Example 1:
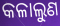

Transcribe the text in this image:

କଳାଲୁଣ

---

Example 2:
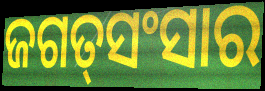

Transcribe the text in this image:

ଜଗତ୍‌ସଂସାର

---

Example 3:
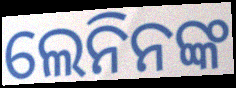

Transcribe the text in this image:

ଲେନିନଙ୍କ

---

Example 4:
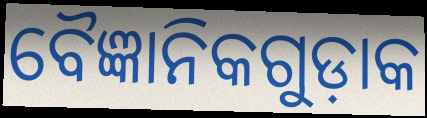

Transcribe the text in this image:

ବୈଜ୍ଞାନିକଗୁଡ଼ାକ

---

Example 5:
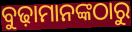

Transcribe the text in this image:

ବୁଢ଼ାମାନଙ୍କଠାରୁ